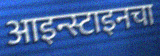
आइन्स्टाइनचा